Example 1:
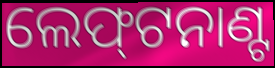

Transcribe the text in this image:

ଲେଫ୍‌ଟନାଣ୍ଟ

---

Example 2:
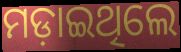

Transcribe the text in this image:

ମଡ଼ାଇଥିଲେ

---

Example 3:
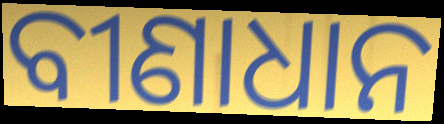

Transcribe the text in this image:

ବୀଣାଧାନ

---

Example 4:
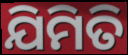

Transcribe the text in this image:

ଯିମିତି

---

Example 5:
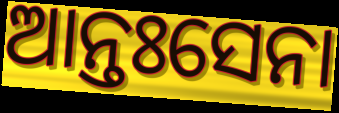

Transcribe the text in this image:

ଆନ୍ତଃସେନା